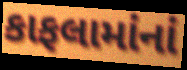
કાફલામાંનાં